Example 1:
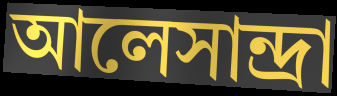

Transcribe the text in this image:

আলেসান্দ্রা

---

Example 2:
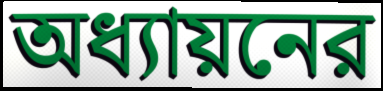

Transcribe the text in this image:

অধ্যায়নের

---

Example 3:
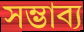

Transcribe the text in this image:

সম্ভাব্য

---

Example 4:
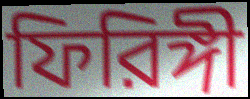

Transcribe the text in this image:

ফিরিঙ্গী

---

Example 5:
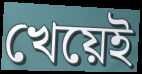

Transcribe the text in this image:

খেয়েই